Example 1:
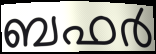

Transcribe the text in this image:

ബഫർ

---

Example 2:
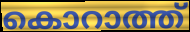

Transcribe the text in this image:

കൊറാത്ത്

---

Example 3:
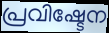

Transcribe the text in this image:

പ്രവിഷ്ടേന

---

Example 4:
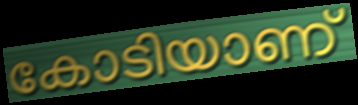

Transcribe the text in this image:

കോടിയാണ്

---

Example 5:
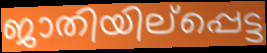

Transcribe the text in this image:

ജാതിയില്പ്പെട്ട